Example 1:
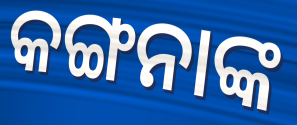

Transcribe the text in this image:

କଙ୍ଗନାଙ୍କ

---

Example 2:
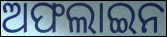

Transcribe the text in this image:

ଅଫଲାଇନ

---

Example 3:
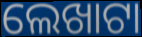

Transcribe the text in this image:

ଲେଖାଟା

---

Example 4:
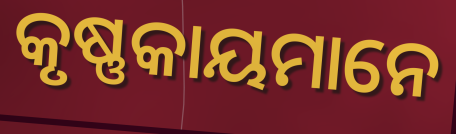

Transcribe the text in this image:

କୃଷ୍ଣକାୟମାନେ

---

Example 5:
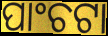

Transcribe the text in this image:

ପାଂଚଟା